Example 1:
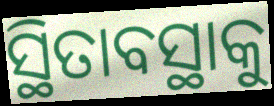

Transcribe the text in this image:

ସ୍ଥିତାବସ୍ଥାକୁ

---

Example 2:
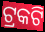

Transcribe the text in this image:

ଟ୍ରକଟି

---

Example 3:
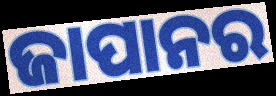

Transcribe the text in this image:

ଜାପାନର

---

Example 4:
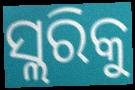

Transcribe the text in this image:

ସ୍ଲରିକୁ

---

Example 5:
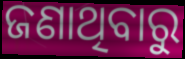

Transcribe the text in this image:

ଜଣାଥିବାରୁ